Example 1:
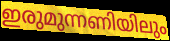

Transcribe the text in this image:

ഇരുമുന്നണിയിലും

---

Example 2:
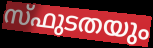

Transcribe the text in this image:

സ്ഫുടതയും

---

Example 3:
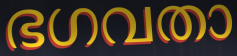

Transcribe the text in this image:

ഭഗവതാ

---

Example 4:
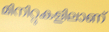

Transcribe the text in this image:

മിനിറ്റുകളിലാണ്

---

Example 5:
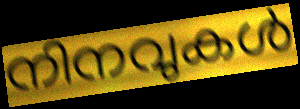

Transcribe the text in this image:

നിനവുകൾ